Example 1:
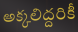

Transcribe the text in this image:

అక్కలిద్దరికీ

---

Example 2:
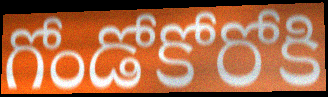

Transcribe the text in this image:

గోండోకోరోకి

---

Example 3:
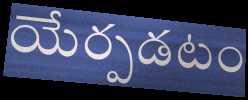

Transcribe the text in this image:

యేర్పడటం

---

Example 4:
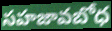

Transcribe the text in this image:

సహజావబోధ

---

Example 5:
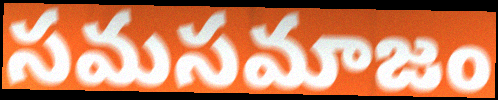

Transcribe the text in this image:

సమసమాజం